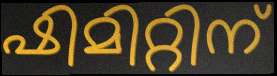
ഷിമിറ്റിന്